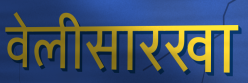
वेलीसारखा